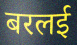
बरलई